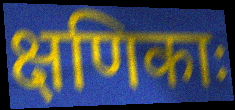
क्षणिकाः